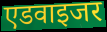
एडवाइजर